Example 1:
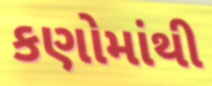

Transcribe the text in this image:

કણોમાંથી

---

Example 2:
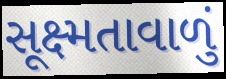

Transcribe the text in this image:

સૂક્ષ્મતાવાળું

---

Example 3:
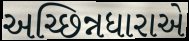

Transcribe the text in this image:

અચ્છિન્નધારાએ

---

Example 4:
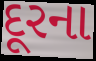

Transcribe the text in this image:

દૂરના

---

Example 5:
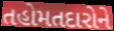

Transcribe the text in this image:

તહોમતદારોને